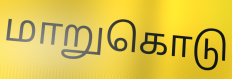
மாறுகொடு